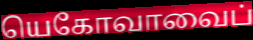
யெகோவாவைப்